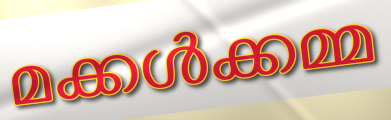
മക്കൾക്കമ്മ